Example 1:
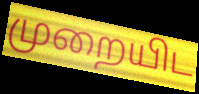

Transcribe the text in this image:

முறையிட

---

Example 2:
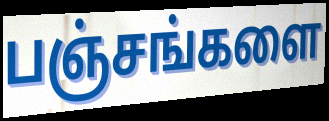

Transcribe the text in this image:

பஞ்சங்களை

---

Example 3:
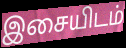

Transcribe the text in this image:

இசையிடம்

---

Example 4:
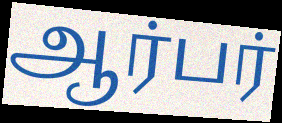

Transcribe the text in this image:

ஆர்பர்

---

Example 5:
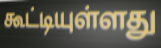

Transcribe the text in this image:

கூட்டியுள்ளது